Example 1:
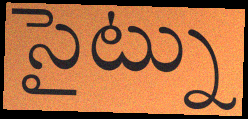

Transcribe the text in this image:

సైట్ను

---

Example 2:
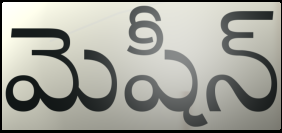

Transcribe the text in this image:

మెషీన్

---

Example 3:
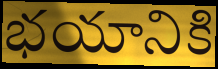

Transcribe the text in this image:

భయానికి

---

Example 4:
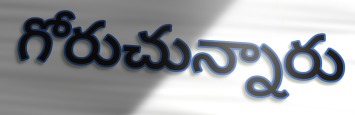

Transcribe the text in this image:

గోరుచున్నారు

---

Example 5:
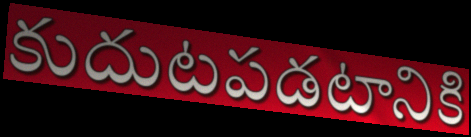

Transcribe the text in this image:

కుదుటపడటానికి